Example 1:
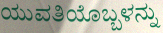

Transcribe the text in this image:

ಯುವತಿಯೊಬ್ಬಳನ್ನು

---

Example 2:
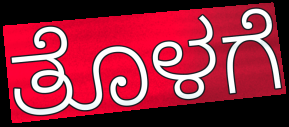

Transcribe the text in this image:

ತೊಳಗೆ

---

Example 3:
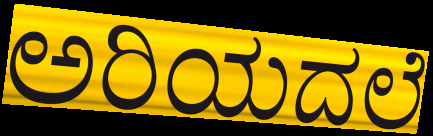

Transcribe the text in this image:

ಅರಿಯದಲೆ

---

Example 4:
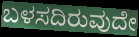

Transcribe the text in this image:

ಬಳಸದಿರುವುದೇ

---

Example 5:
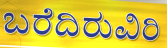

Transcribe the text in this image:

ಬರೆದಿರುವಿರಿ